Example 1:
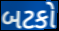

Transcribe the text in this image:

બટકો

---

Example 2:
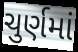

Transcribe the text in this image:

ચુર્ણમાં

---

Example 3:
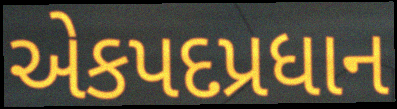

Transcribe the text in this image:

એકપદપ્રધાન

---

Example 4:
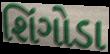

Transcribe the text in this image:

શિંગોડા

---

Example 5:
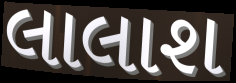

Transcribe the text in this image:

લાલાશ